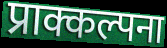
प्राक्कल्पना